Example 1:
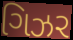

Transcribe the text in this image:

ગિઝર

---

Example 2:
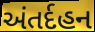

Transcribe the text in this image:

અંતર્દહન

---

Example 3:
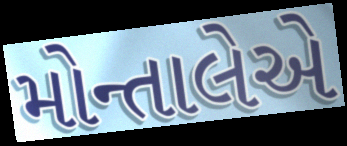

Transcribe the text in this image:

મોન્તાલેએ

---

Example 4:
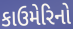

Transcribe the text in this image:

કાઉમેરિનો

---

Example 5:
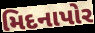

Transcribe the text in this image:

મિદનાપોર